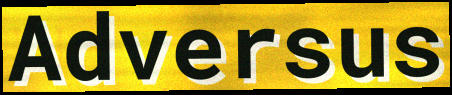
Adversus